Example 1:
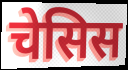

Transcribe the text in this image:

चेसिस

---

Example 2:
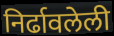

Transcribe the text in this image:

निर्ढावलेली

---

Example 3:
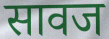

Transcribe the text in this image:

सावज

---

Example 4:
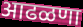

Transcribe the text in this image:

आढळणा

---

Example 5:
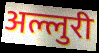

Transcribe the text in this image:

अल्लुरी